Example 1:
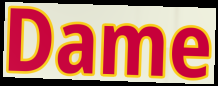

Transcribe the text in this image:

Dame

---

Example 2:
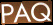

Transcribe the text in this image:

PAQ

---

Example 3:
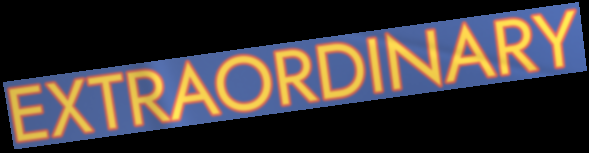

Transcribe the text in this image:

EXTRAORDINARY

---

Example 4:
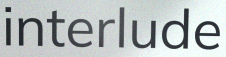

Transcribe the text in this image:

interlude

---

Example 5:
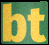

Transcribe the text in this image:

bt